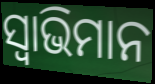
ସ୍ୱାଭିମାନ